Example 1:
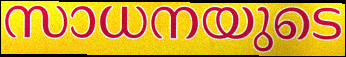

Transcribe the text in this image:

സാധനയുടെ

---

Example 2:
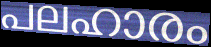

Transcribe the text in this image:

പലഹാരം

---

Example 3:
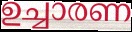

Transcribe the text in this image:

ഉച്ചാരണ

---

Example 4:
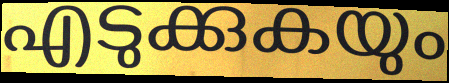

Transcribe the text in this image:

എടുക്കുകയും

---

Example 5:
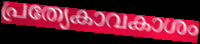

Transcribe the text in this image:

പ്രത്യേകാവകാശം